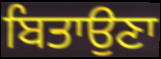
ਬਿਤਾਉਣਾ